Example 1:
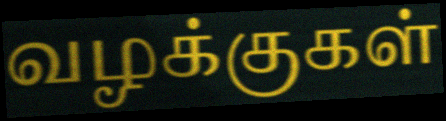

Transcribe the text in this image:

வழக்குகள்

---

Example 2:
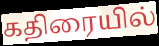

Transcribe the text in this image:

கதிரையில்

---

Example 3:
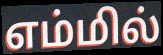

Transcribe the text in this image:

எம்மில்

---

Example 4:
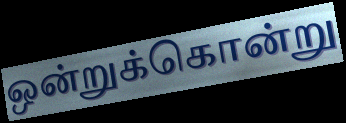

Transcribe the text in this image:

ஒன்றுக்கொன்று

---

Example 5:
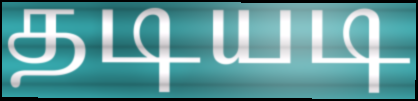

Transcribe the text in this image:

தடியடி